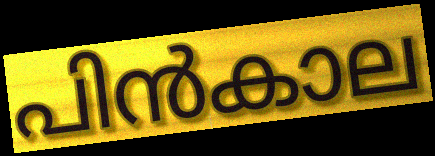
പിൻകാല